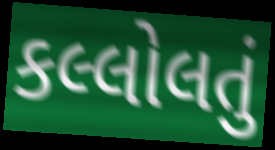
કલ્લોલતું